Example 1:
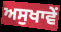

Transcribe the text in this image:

ਅਸੁਖਾਵੇਂ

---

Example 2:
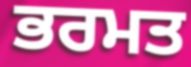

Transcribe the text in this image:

ਭਰਮਤ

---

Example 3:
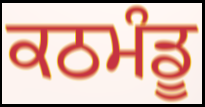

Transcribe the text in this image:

ਕਠਮੰਡੂ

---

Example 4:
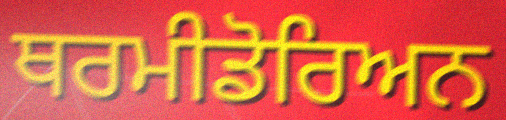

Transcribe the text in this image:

ਥਰਮੀਡੋਰਿਅਨ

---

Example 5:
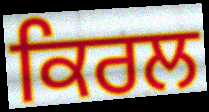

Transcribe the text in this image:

ਕਿਰਲ